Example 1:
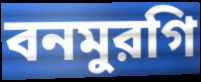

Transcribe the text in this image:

বনমুরগি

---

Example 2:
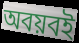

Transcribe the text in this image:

অবয়বই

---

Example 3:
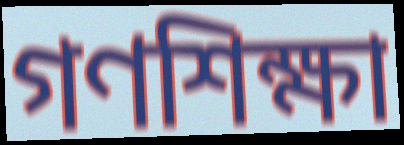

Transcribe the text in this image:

গণশিক্ষা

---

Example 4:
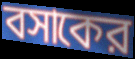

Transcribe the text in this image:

বসাকের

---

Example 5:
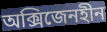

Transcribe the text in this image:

অক্সিজেনহীন